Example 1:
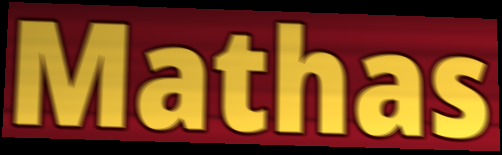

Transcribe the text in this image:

Mathas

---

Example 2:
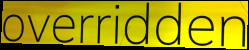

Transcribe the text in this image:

overridden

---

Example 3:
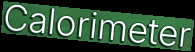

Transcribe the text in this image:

Calorimeter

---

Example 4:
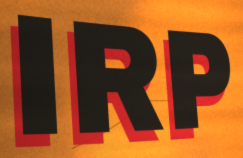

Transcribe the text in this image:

IRP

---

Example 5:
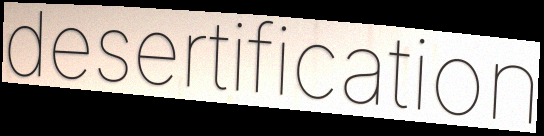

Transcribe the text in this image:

desertification